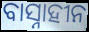
ବାସ୍ନାହୀନ